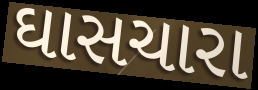
ઘાસચારા